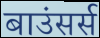
बाउंसर्स